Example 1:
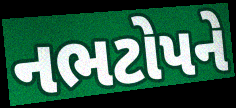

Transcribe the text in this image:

નભટોપને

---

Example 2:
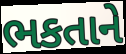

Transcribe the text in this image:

ભકતાને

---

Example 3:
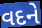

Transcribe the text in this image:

વદને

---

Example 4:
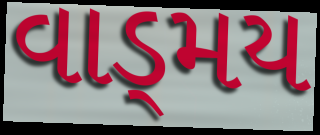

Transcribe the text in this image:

વાડ્મય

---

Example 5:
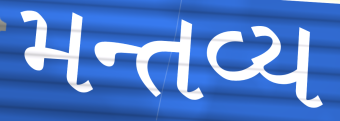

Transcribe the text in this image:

મન્તવ્ય